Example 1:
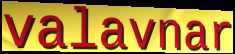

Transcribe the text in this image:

valavnar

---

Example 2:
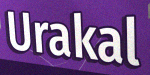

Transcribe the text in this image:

Urakal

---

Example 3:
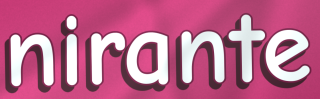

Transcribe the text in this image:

nirante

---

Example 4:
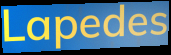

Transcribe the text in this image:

Lapedes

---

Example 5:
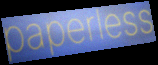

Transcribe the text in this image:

paperless